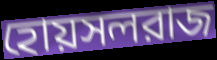
হোয়সলরাজ